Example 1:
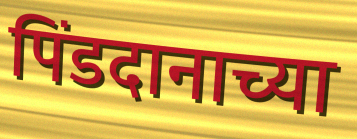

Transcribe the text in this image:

पिंडदानाच्या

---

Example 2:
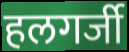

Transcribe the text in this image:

हलगर्जी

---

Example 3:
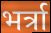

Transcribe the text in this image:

भर्त्रा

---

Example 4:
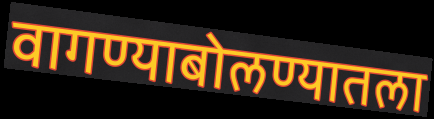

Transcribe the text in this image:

वागण्याबोलण्यातला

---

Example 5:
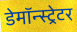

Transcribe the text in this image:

डेमॉन्स्ट्रेटर